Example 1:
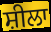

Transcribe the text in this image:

ਸ਼ੀਲਾ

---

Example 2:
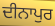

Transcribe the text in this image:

ਦੀਨਾਪੁਰ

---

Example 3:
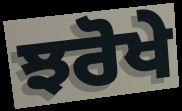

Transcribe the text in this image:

ਝਰੋਖੇ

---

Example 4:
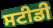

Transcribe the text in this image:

ਸਟੀਡੀ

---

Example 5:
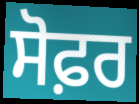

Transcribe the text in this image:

ਸੋਫ਼ਰ